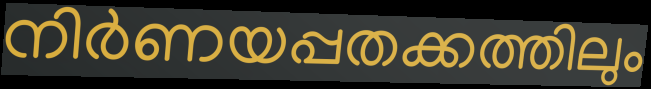
നിർണയപ്പതക്കത്തിലും